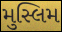
મુસ્લિમ